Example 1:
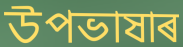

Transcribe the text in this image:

উপভাষাৰ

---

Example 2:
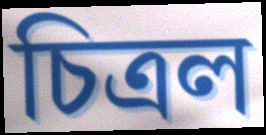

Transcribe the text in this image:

চিত্ৰল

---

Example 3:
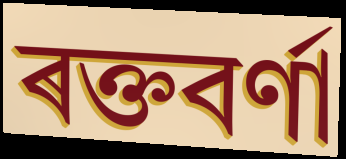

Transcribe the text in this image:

ৰক্তবৰ্ণা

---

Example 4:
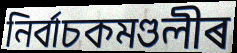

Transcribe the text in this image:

নিৰ্বাচকমণ্ডলীৰ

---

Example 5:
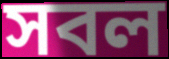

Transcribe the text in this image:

সবল